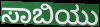
ಸಾಬಿಯು